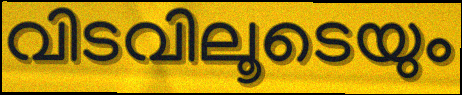
വിടവിലൂടെയും